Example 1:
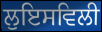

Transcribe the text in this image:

ਲੁਇਸਵਿਲੀ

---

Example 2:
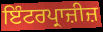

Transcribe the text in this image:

ਇੰਟਰਪ੍ਰਾਜ਼ੀਜ਼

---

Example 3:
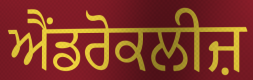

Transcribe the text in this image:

ਐਂਡਰੋਕਲੀਜ਼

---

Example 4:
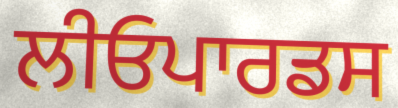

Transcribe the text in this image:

ਲੀਓਪਾਰਡਸ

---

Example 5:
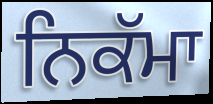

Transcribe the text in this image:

ਨਿਕੱਮਾ